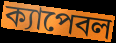
ক্যাপেবল